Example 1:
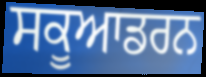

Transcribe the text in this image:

ਸਕੂਆਡਰਨ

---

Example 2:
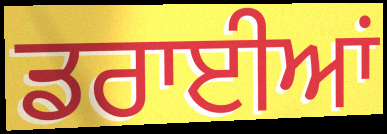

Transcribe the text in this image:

ਡਰਾਈਆਂ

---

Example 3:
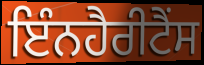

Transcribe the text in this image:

ਇੰਨਹੈਰੀਟੈੰਸ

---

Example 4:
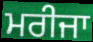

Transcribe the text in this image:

ਮਰੀਜਾ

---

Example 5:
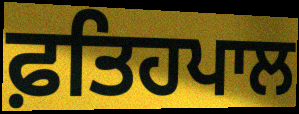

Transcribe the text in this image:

ਫ਼ਤਿਹਪਾਲ